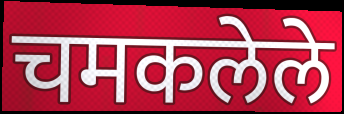
चमकलेले